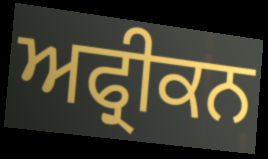
ਅਫ੍ਰੀਕਨ